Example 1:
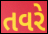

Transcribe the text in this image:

તવરે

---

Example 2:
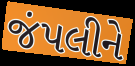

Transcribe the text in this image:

જંપલીને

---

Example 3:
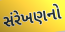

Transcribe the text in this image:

સંરેખણનો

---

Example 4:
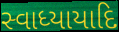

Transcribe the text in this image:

સ્વાધ્યાયાદિ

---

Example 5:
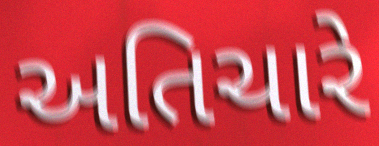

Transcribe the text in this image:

અતિચારે